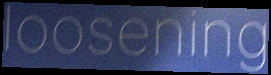
loosening